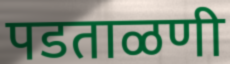
पडताळणी